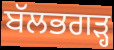
ਬੱਲਭਗੜ੍ਹ